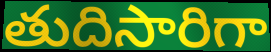
తుదిసారిగా